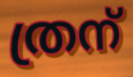
ത്രന്